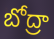
బోద్రా